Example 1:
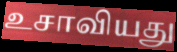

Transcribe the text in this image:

உசாவியது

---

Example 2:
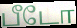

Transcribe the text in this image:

பீடோ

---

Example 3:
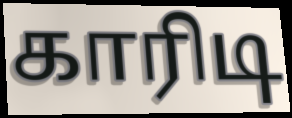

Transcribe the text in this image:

காரிடி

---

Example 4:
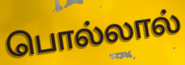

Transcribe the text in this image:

பொல்லால்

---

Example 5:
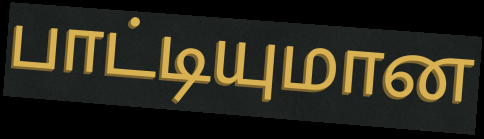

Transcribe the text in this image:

பாட்டியுமான